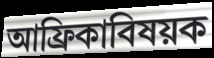
আফ্রিকাবিষয়ক